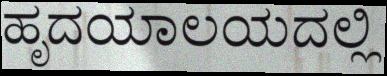
ಹೃದಯಾಲಯದಲ್ಲಿ